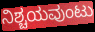
ನಿಶ್ಚಯವುಂಟು